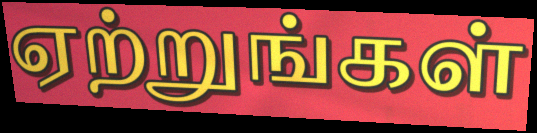
ஏற்றுங்கள்